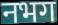
नभग